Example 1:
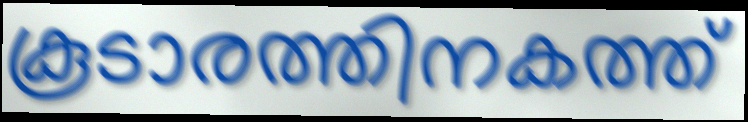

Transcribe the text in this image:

കൂടാരത്തിനകത്ത്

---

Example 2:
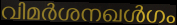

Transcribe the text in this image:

വിമർശനഖൾഗം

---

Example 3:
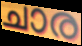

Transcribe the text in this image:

ചാര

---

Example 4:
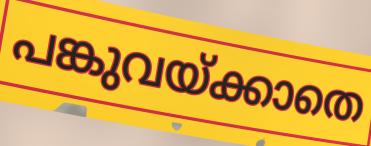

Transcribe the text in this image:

പങ്കുവയ്ക്കാതെ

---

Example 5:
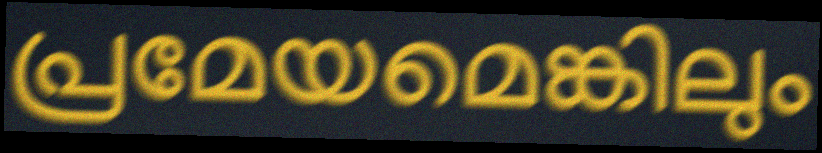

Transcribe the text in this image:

പ്രമേയമെങ്കിലും